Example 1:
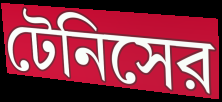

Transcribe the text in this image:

টেনিসের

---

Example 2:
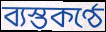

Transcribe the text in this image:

ব্যস্তকণ্ঠে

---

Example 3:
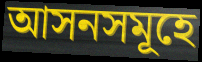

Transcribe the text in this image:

আসনসমূহে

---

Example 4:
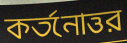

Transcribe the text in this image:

কর্তনোত্তর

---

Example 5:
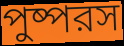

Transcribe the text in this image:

পুষ্পরস